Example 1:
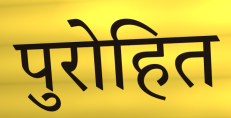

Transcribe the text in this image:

पुरोहित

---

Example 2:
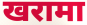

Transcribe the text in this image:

खरामा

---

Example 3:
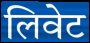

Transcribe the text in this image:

लिवेट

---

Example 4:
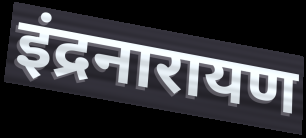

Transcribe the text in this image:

इंद्रनारायण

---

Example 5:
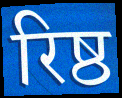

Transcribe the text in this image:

रिष्ठ